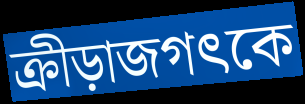
ক্রীড়াজগৎকে